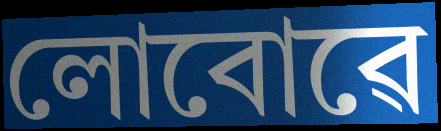
লোবোৱে